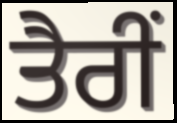
ਤੈਰੀਂ